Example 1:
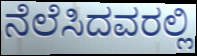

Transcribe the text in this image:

ನೆಲೆಸಿದವರಲ್ಲಿ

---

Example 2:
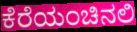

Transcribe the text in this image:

ಕೆರೆಯಂಚಿನಲಿ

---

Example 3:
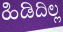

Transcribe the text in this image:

ಹಿಡಿದಿಲ್ಲ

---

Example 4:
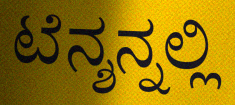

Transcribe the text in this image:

ಟೆನ್ಶನ್ನಲ್ಲಿ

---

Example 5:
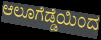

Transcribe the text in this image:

ಆಲೂಗೆಡ್ಡೆಯಿಂದ